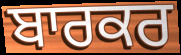
ਬਾਰਕਰ